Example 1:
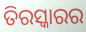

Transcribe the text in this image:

ତିରସ୍କାରର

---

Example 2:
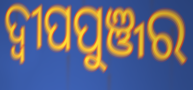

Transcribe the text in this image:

ଦ୍ଵୀପପୁଞ୍ଜର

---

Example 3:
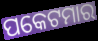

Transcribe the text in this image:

ପକେଟମାର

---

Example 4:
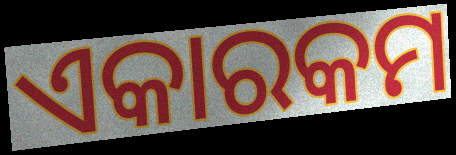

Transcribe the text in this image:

ଏକାରକମ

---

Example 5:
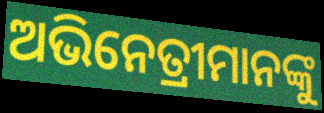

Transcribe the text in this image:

ଅଭିନେତ୍ରୀମାନଙ୍କୁ